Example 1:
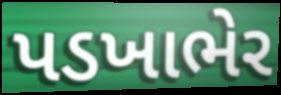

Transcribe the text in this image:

પડખાભેર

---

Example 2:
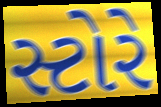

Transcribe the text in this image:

સ્ટોરે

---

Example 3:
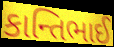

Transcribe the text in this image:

કાન્તિભાઈ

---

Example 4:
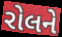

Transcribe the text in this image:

રોલને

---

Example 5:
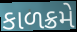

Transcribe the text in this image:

કાળક્રમે